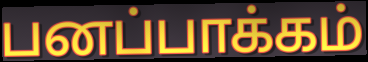
பனப்பாக்கம்